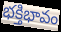
భక్తిభావం